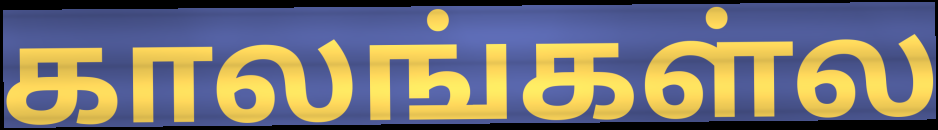
காலங்கள்ல